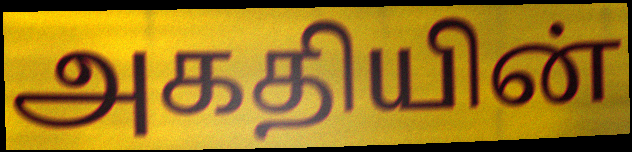
அகதியின்